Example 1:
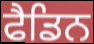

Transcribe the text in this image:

ਫੈਡਿਨ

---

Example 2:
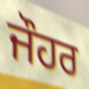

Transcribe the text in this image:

ਜੌਹਰ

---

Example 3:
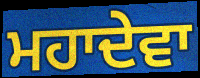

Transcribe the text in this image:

ਮਹਾਦੇਵਾ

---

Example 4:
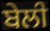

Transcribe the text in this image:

ਬੇਲੀ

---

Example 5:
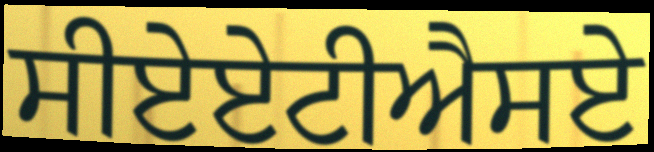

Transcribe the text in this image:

ਸੀਏਏਟੀਐਸਏ